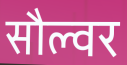
सौल्वर